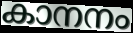
കാനനം